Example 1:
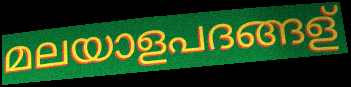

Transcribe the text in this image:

മലയാളപദങ്ങള്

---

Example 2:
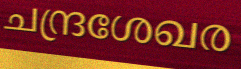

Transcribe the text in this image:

ചന്ദ്രശേഖര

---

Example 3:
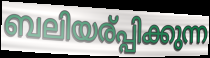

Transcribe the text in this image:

ബലിയര്പ്പിക്കുന്ന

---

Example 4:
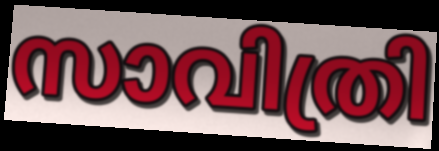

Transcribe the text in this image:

സാവിത്രി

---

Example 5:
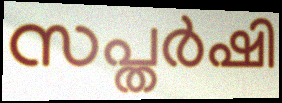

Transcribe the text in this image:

സപ്തർഷി